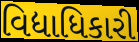
વિદ્યાધિકારી